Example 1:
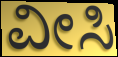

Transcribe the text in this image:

ವೀಸಿ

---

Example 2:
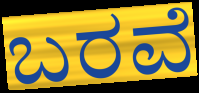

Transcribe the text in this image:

ಬರವೆ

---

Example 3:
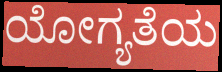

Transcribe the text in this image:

ಯೋಗ್ಯತೆಯ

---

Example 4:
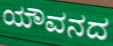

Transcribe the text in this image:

ಯೌವನದ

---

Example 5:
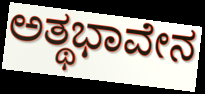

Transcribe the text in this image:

ಅತ್ಥಭಾವೇನ